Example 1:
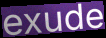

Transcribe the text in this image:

exude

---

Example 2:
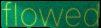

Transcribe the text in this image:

flowed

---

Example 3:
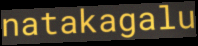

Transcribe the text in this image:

natakagalu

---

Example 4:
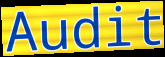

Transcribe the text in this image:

Audit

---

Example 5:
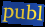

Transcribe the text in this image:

publ